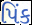
પિંક